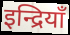
इन्द्रियाँ